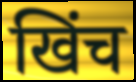
खिंच